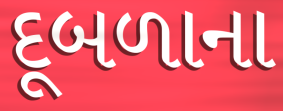
દૂબળાના